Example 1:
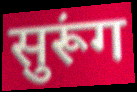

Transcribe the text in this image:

सुरूंग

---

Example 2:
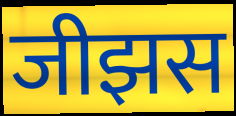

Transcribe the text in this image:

जीझस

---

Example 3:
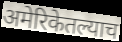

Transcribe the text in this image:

अमेरिकेतल्याच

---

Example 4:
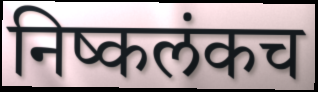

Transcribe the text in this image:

निष्कलंकच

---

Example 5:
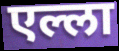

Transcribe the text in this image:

एल्ला